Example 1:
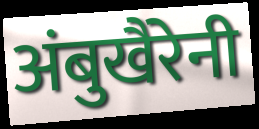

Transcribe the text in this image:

अंबुखैरेनी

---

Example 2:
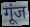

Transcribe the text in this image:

गूंज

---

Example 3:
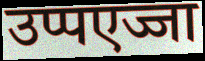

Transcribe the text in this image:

उप्पएज्जा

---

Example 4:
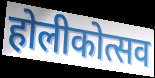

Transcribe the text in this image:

होलीकोत्सव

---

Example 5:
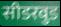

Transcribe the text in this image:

सीडरवुड